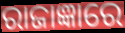
ରାଜାଜ୍ଞାରେ